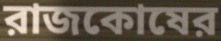
রাজকোষের